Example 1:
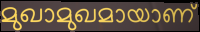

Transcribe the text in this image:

മുഖാമുഖമായാണ്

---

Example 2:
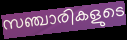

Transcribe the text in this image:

സഞ്ചാരികളുടെ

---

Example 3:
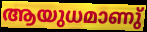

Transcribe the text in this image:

ആയുധമാണു്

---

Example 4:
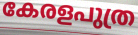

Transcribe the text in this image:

കേരളപുത്ര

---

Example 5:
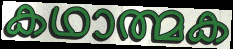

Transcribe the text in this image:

കഥാത്മക